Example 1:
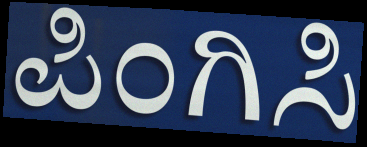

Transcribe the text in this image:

ಪಿಂಗಿಸಿ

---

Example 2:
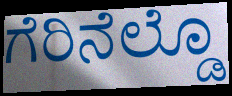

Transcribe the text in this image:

ಗೆರಿನೆಲ್ಡೊ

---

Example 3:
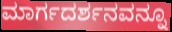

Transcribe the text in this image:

ಮಾರ್ಗದರ್ಶನವನ್ನೂ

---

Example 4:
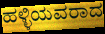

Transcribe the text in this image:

ಹಳ್ಳಿಯವರಾದ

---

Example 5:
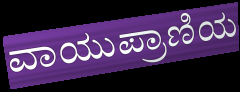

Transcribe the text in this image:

ವಾಯುಪ್ರಾಣಿಯ